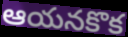
ఆయనకొక